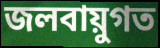
জলবায়ুগত